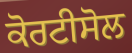
ਕੋਰਟੀਸੋਲ